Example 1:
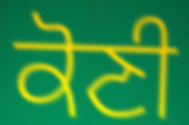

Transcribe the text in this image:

ਕੋਣੀ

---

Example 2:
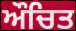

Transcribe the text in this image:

ਔਚਿਤ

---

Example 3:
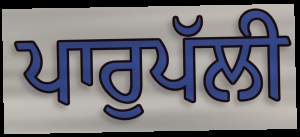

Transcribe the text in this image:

ਪਾਰੁਪੱਲੀ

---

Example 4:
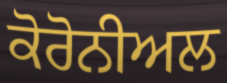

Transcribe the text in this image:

ਕੋਰੋਨੀਅਲ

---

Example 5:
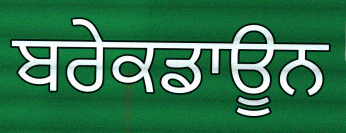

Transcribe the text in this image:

ਬਰੇਕਡਾਊਨ